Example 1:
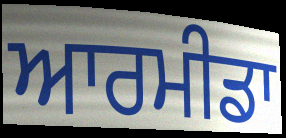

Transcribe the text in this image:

ਆਰਮੀਡਾ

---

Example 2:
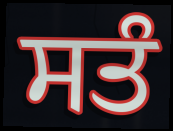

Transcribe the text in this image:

ਸਤੰ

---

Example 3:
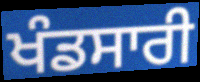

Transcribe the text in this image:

ਖੰਡਸਾਰੀ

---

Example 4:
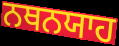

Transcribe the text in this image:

ਨਥਨਯਾਹ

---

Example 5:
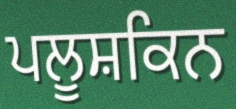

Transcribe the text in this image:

ਪਲੂਸ਼ਕਿਨ